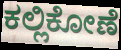
ಕಲ್ಲಿಕೋಣೆ